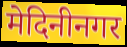
मेदिनीनगर